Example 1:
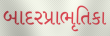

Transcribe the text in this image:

બાદરપ્રાભૃતિકા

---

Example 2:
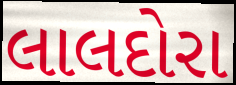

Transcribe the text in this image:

લાલદોરા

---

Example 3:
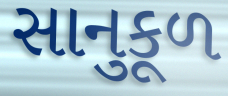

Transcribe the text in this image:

સાનુકૂળ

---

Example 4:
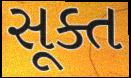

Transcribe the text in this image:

સૂક્ત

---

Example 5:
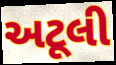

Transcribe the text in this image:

અટૂલી